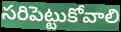
సరిపెట్టుకోవాలి